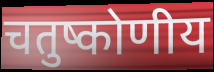
चतुष्कोणीय